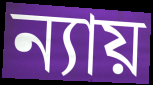
ন্যায়